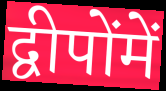
द्वीपोंमें